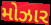
મોઝાર